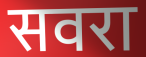
सवरा